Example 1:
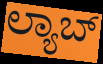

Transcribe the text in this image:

ಲ್ಯಾಬ್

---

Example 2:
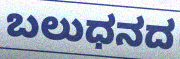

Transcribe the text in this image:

ಬಲುಧನದ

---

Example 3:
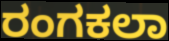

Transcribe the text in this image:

ರಂಗಕಲಾ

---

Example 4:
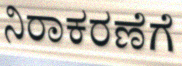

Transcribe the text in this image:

ನಿರಾಕರಣೆಗೆ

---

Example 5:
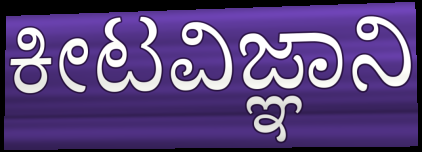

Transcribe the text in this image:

ಕೀಟವಿಜ್ಞಾನಿ